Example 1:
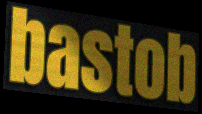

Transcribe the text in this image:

bastob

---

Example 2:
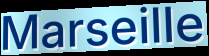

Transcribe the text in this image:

Marseille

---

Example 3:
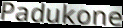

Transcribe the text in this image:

Padukone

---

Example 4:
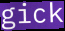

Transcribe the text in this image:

gick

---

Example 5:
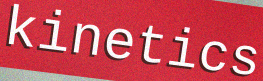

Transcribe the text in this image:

kinetics